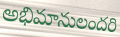
అభిమానులందరి